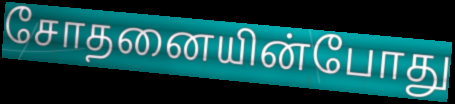
சோதனையின்போது